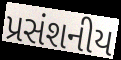
પ્રસંશનીય